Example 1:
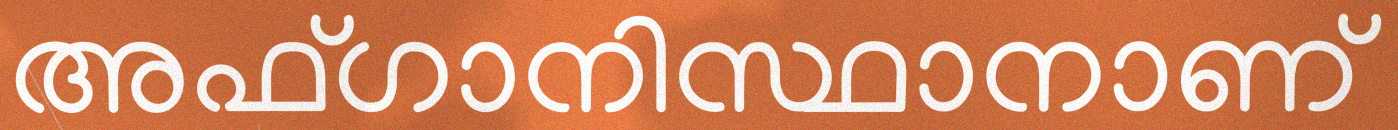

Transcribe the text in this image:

അഫ്ഗാനിസ്ഥാനാണ്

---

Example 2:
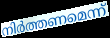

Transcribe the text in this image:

നിർത്തണമെന്ന്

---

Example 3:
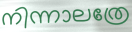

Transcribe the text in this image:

നിന്നാലത്രേ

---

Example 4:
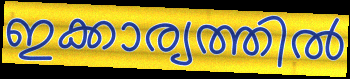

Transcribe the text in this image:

ഇക്കാര്യത്തിൽ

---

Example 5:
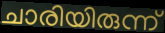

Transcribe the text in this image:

ചാരിയിരുന്ന്